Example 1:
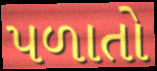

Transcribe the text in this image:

પળાતો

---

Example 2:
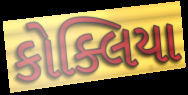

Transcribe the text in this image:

કોક્લિયા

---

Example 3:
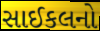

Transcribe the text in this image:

સાઈકલનો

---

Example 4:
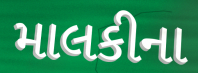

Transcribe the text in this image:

માલકીના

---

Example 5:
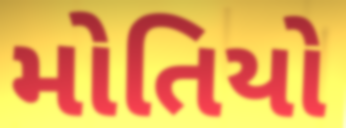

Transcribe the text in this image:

મોતિયો